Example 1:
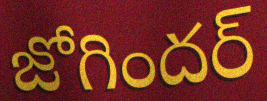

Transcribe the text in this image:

జోగిందర్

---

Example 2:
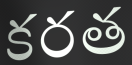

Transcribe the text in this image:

కరత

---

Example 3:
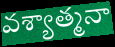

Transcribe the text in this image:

వశ్యాత్మనా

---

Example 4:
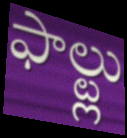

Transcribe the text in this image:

ఫాల్ట్లు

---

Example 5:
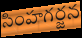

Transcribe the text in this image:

సింహగర్జన